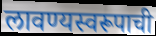
लावण्यस्वरूपाची